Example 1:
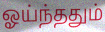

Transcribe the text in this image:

ஓய்ந்ததும்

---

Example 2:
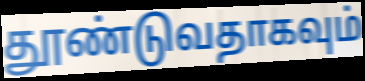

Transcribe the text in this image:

தூண்டுவதாகவும்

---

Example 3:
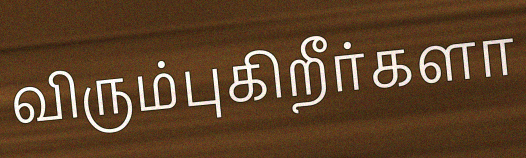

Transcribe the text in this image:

விரும்புகிறீர்களா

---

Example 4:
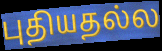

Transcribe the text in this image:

புதியதல்ல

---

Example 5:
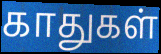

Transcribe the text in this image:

காதுகள்